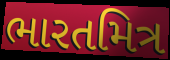
ભારતમિત્ર